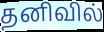
தனிவில்